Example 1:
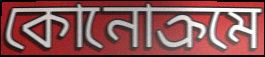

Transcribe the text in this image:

কোনোক্রমে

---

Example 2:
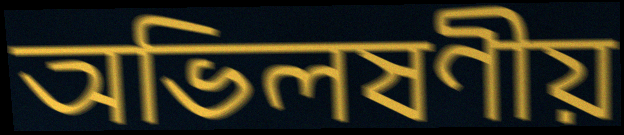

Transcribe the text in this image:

অভিলষণীয়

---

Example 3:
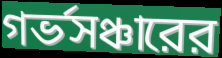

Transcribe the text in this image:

গর্ভসঞ্চারের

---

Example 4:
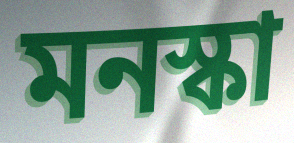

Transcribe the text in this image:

মনস্কা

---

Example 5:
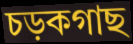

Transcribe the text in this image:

চড়কগাছ